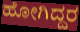
ಹೋಗಿದ್ದರ